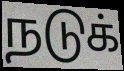
நடுக்